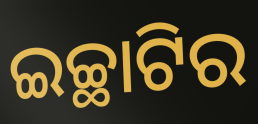
ଇଚ୍ଛାଟିର